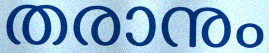
തരാനും